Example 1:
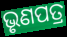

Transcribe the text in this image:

ଭୃଣପତ୍ର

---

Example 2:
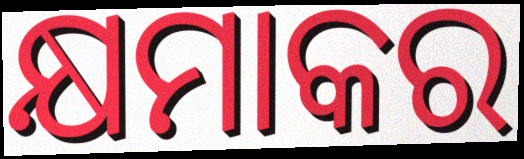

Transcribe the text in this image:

କ୍ଷମାକର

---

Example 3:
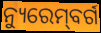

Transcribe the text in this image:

ନ୍ୟୁରେମ୍‌ବର୍ଗ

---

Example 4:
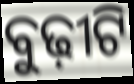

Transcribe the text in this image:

ବୁଢ଼ୀଟି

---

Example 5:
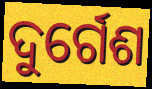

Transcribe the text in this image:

ଦୁର୍ଗେଶ